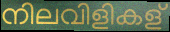
നിലവിളികള്